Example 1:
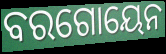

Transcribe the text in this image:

ବରଗୋୟେନ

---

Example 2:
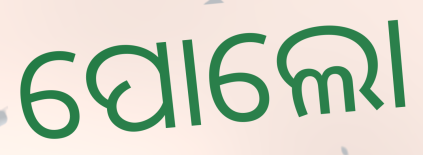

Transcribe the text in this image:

ପୋଲୋ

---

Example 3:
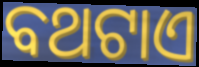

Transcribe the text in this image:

ବଥଟାଏ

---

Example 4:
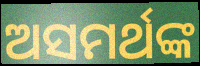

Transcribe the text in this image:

ଅସମର୍ଥଙ୍କ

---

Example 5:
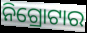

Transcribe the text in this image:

ନିଗ୍ରୋଟାର